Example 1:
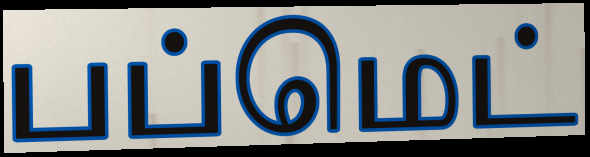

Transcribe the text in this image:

பப்மெட்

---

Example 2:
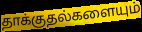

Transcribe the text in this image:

தாக்குதல்களையும்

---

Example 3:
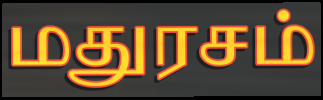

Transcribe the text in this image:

மதுரசம்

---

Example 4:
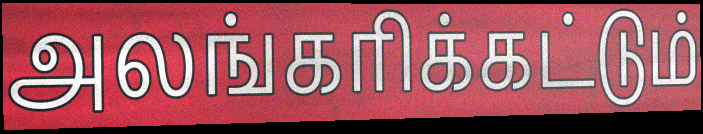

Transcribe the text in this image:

அலங்கரிக்கட்டும்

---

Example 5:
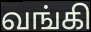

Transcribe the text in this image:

வங்கி